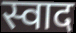
स्‍वाद